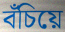
বঁচিয়ে